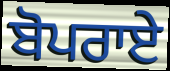
ਬੋਪਰਾਏ